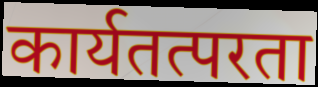
कार्यतत्परता